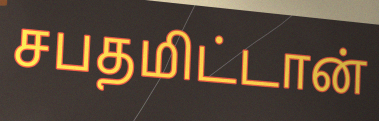
சபதமிட்டான்